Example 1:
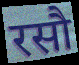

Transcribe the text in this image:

रसौ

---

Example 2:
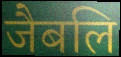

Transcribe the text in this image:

जैबलि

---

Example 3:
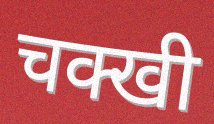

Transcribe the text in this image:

चक्खी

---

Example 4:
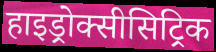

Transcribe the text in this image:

हाइड्रोक्सीसिट्रिक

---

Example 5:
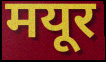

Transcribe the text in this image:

मयूर